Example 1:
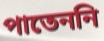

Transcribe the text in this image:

পাতেননি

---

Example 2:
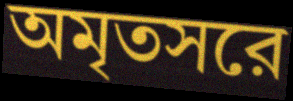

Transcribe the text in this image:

অমৃতসরে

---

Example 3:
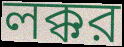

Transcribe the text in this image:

লক্কর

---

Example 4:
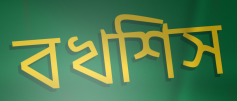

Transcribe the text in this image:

বখশিস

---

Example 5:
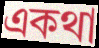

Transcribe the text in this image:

একথা